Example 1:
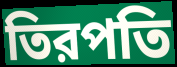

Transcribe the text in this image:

তিরপতি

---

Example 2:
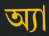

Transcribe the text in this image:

অ্যা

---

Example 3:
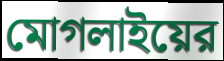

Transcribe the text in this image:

মোগলাইয়ের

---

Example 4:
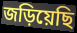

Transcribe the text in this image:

জড়িয়েছি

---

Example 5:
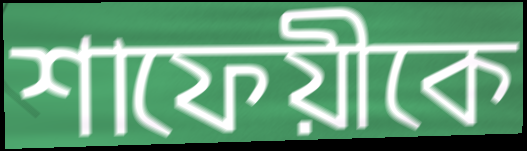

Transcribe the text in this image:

শাফেয়ীকে